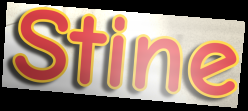
Stine